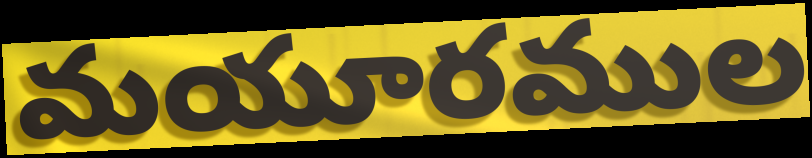
మయూరముల